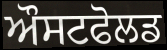
ਔਸਟਫੋਲਡ